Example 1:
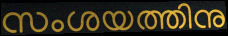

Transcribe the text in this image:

സംശയത്തിനു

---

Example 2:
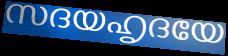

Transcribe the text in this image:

സദയഹൃദയേ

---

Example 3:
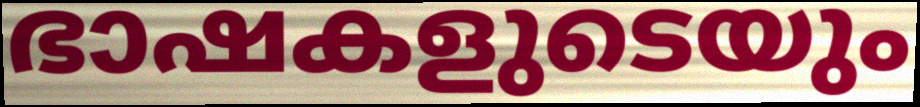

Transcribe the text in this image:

ഭാഷകളുടെയും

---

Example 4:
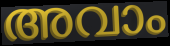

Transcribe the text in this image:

അവാം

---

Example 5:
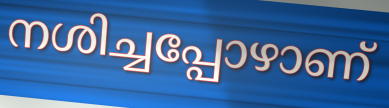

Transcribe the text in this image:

നശിച്ചപ്പോഴാണ്